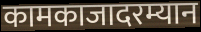
कामकाजादरम्यान